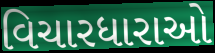
વિચારધારાઓ